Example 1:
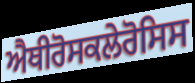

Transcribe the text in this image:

ਐਥੀਰੋਸਕਲੇਰੋਸਿਸ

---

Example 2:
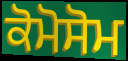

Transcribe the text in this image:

ਕੋਮੋਸੋਮ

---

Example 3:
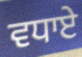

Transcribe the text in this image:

ਵਧਾਏ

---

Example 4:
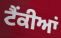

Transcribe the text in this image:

ਟੈਂਕੀਆਂ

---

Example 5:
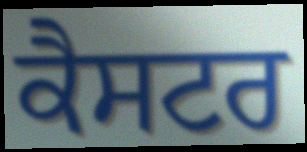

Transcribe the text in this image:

ਕੈਸਟਰ